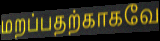
மறப்பதற்காகவே